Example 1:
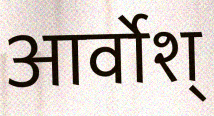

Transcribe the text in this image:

आर्वोश्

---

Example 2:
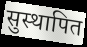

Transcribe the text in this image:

सुस्थापित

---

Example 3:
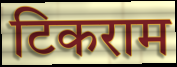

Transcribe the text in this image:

टिकराम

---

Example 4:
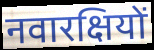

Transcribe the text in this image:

नवारक्षियों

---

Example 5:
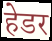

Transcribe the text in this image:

हेडर